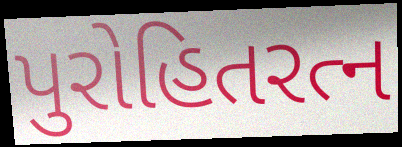
પુરોહિતરત્ન